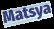
Matsya